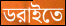
ডরাইতে